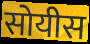
सोयीस